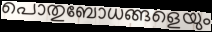
പൊതുബോധങ്ങളെയും